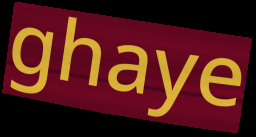
ghaye